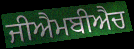
ਜੀਐਮਬੀਐਚ